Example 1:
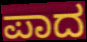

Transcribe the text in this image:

ಪಾದ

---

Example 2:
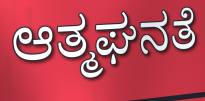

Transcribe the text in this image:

ಆತ್ಮಘನತೆ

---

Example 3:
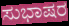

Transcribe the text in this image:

ಸುಭಾಷರ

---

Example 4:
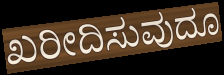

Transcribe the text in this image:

ಖರೀದಿಸುವುದೂ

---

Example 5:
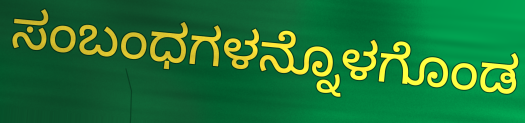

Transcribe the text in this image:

ಸಂಬಂಧಗಳನ್ನೊಳಗೊಂಡ